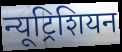
न्यूट्रिशियन